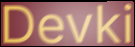
Devki